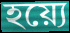
হয়্যে